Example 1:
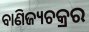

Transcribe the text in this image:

ବାଣିଜ୍ୟଚକ୍ରର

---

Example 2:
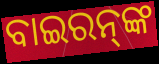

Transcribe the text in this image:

ବାଇରନ୍‌ଙ୍କ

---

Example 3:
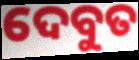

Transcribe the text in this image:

ଦେବୁତ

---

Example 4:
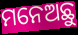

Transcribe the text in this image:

ମନେଅଛୁ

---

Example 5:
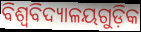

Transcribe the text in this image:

ବିଶ୍ଵବିଦ୍ୟାଳୟଗୁଡ଼ିକ